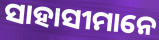
ସାହାସୀମାନେ